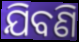
ଯିବଣି